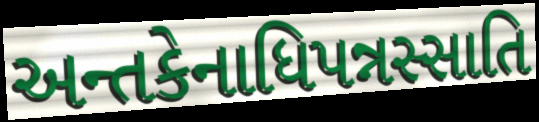
અન્તકેનાધિપન્નસ્સાતિ